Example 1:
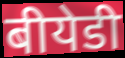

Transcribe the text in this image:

बीयेडी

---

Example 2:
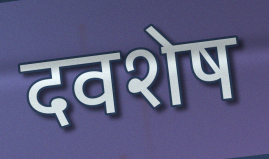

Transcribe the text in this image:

दवशेष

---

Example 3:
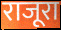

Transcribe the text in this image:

राजूरा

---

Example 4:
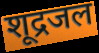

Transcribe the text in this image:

शूद्रजल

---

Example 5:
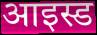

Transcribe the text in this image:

आइस्ड